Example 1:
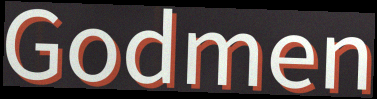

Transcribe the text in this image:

Godmen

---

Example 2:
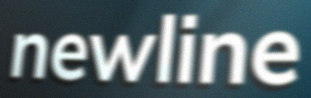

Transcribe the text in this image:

newline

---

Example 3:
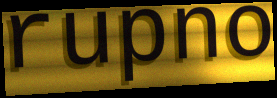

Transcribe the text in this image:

rupno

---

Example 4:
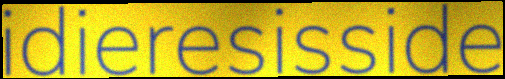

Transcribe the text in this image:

idieresisside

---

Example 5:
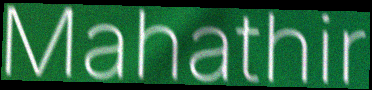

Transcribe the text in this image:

Mahathir